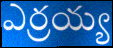
ఎర్రయ్య